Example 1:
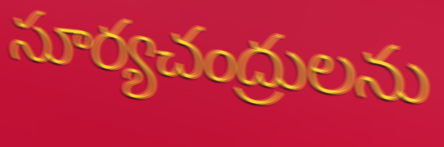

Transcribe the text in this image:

సూర్యచంద్రులను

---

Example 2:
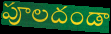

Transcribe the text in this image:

పూలదండా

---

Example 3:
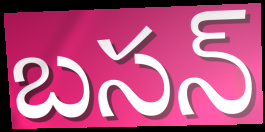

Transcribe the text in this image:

బసన్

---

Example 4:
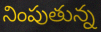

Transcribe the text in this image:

నింపుతున్న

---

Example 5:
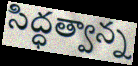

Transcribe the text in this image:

సిద్ధత్వాన్న